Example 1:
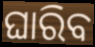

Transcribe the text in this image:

ଘାରିବ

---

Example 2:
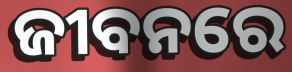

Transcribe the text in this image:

ଜୀବନରେ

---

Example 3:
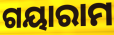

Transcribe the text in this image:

ଗୟାରାମ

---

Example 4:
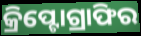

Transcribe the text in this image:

କ୍ରିପ୍ଟୋଗ୍ରାଫିର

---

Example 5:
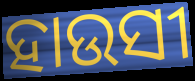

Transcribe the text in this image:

ହାଉସୀ